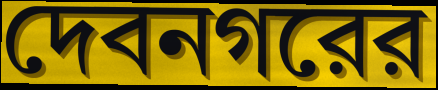
দেবনগরের